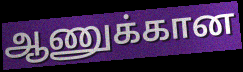
ஆணுக்கான